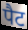
पैट